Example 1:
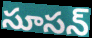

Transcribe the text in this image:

సూసన్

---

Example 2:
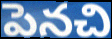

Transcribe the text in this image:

పెనచి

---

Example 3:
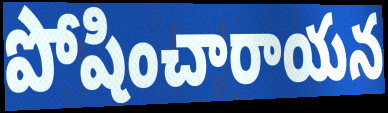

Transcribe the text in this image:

పోషించారాయన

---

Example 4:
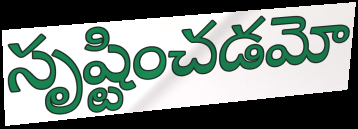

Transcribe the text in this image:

సృష్టించడమో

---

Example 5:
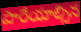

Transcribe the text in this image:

పారేయాల్సిన